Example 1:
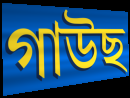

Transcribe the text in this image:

গাউছ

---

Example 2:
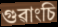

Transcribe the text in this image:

গুৱাংচি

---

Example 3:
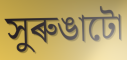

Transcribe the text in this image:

সুৰুঙাটো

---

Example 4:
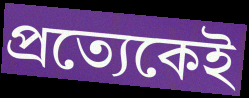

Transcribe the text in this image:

প্ৰত্যেকেই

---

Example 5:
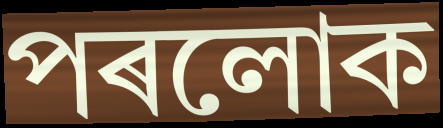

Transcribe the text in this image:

পৰলোক